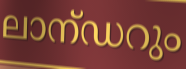
ലാന്ഡറും